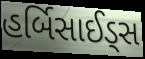
હર્બિસાઈડ્સ